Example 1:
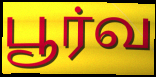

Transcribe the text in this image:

பூர்வ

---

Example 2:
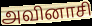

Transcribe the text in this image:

அவினாசி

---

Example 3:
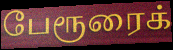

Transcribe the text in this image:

பேரூரைக்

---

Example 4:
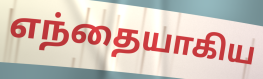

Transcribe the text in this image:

எந்தையாகிய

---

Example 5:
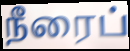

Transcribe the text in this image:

நீரைப்